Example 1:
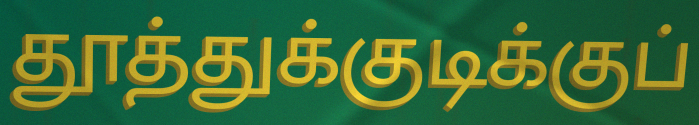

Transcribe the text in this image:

தூத்துக்குடிக்குப்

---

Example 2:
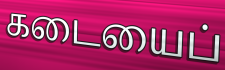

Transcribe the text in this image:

கடையைப்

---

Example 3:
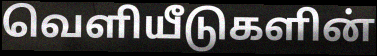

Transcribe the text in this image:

வெளியீடுகளின்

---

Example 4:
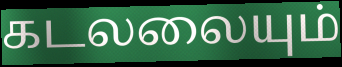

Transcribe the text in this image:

கடலலையும்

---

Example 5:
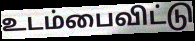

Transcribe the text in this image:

உடம்பைவிட்டு